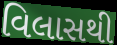
વિલાસથી